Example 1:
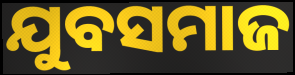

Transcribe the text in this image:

ଯୁବସମାଜ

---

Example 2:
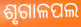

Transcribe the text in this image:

ଶୃଗାଳପଲ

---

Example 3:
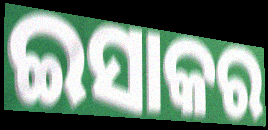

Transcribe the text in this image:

ଇସାକର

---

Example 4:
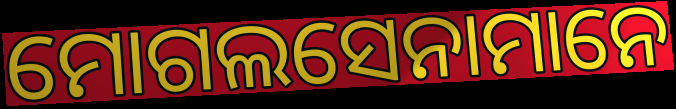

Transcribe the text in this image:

ମୋଗଲସେନାମାନେ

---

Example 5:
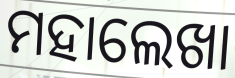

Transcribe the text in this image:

ମହାଲେଖା